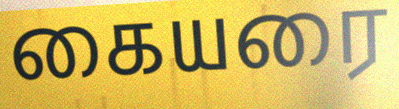
கையரை